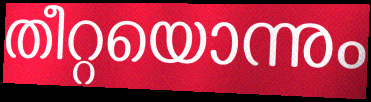
തീറ്റയൊന്നും